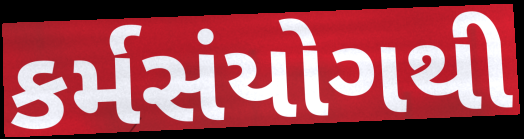
કર્મસંયોગથી